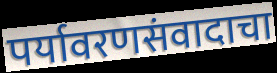
पर्यावरणसंवादाचा